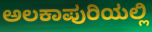
ಅಲಕಾಪುರಿಯಲ್ಲಿ